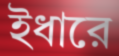
ইধারে